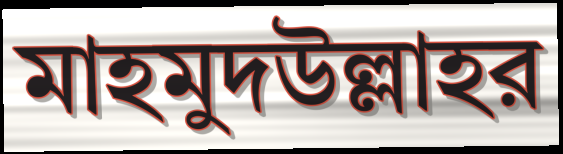
মাহমুদউল্লাহর